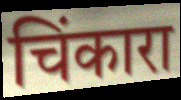
चिंकारा